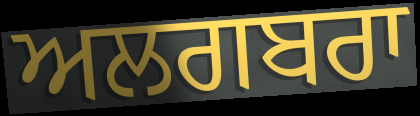
ਅਲਗਬਰਾ